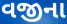
વજીના